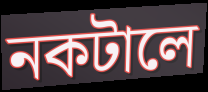
নকটালে